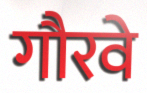
गौरवे